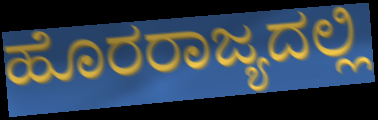
ಹೊರರಾಜ್ಯದಲ್ಲಿ